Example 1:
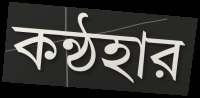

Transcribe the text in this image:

কন্ঠহার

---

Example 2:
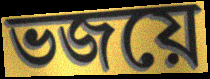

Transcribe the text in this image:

ভজয়ে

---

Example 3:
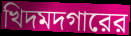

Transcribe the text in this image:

খিদমদগারের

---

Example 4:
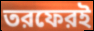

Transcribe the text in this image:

তরফেরই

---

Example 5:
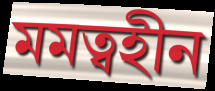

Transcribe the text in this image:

মমত্বহীন